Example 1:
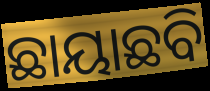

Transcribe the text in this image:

ଛାୟାଛବି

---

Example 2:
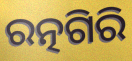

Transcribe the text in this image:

ରତ୍ନଗିରି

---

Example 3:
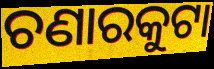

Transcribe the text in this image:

ଚଣାରକୁଟା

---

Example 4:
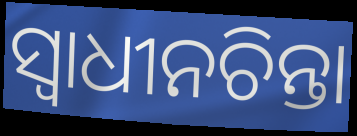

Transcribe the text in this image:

ସ୍ଵାଧୀନଚିନ୍ତା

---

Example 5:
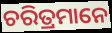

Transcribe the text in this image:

ଚରିତ୍ରମାନେ